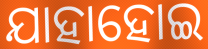
ଯାହାହୋଇ